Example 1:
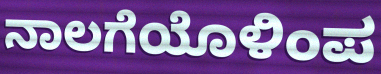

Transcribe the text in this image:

ನಾಲಗೆಯೊಳಿಂಪ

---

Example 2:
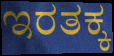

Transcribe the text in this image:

ಇರತಕ್ಕ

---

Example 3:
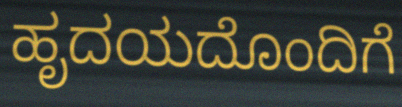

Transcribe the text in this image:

ಹೃದಯದೊಂದಿಗೆ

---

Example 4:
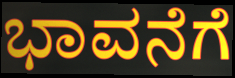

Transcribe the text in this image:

ಭಾವನೆಗೆ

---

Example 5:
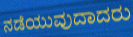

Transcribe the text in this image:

ನಡೆಯುವುದಾದರು